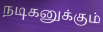
நடிகனுக்கும்